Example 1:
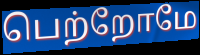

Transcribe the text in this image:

பெற்றோமே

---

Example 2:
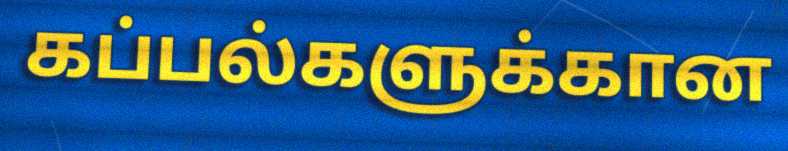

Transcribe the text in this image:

கப்பல்களுக்கான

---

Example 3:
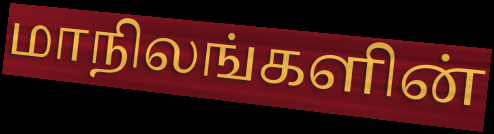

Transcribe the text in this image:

மாநிலங்களின்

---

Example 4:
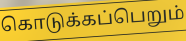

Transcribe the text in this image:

கொடுக்கப்பெறும்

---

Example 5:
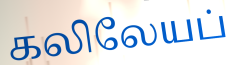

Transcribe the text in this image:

கலிலேயப்